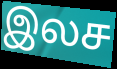
இலச